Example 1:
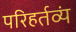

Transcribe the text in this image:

परिहर्तव्यं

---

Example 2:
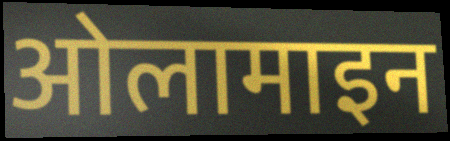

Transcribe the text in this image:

ओलामाइन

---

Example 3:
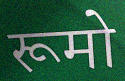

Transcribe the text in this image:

रूमो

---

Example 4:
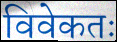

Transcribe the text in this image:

विवेकतः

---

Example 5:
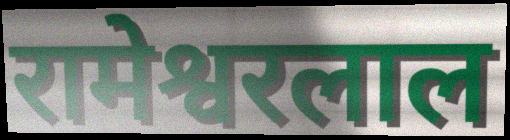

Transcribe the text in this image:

रामेश्वरलाल